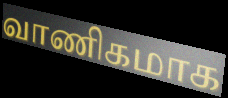
வாணிகமாக